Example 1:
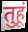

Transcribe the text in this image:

तुहूं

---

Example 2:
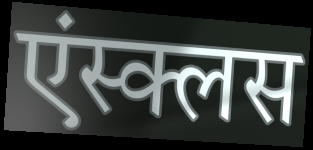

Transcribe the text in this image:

एंस्क्लस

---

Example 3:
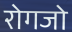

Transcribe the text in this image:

रोगजो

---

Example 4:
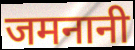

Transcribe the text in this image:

जमनानी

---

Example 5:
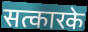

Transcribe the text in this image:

सत्कारके